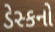
ડેસ્કનો